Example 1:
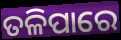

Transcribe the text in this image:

ତଳିପାରେ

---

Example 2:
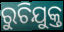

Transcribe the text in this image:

ରୁଚିଯୁକ୍ତ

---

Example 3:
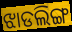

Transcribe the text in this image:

ଝାଡଲିଙ୍ଗ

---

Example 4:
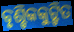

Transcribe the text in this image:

ବୃଶ୍ଚିକକୁଟ୍ଟିତ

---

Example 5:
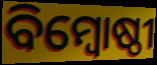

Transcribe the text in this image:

ବିମ୍ବୋଷ୍ଠୀ